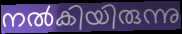
നൽകിയിരുന്നു